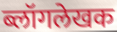
ब्लॉगलेखक